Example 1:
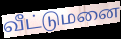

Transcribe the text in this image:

வீட்டுமனை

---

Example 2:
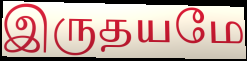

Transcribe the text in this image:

இருதயமே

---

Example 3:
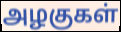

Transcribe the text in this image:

அழகுகள்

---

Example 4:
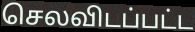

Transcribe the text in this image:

செலவிடப்பட்ட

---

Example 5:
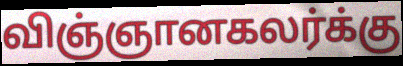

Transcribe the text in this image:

விஞ்ஞானகலர்க்கு